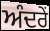
ਅੰਦਰੇਂ